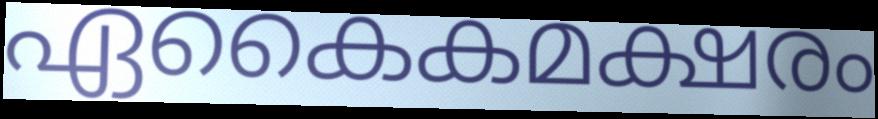
ഏകൈകമക്ഷരം